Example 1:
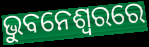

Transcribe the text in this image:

ଭୁବନେଶ୍ବରରେ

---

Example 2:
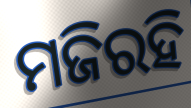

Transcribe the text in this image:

ମଜିରହି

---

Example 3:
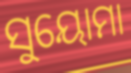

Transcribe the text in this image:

ସୁୟୋମା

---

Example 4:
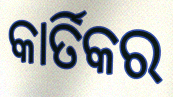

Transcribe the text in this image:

କାର୍ତିକର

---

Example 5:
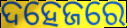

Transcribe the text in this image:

ଦହେଜରେ